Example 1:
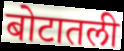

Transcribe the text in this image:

बोटातली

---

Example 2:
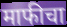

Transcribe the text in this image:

माफीचा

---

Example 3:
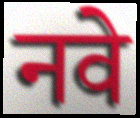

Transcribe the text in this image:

नवे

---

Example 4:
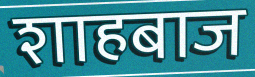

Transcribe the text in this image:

शाहबाज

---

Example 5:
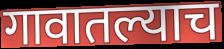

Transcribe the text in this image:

गावातल्याच